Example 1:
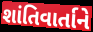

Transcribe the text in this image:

શાંતિવાર્તાને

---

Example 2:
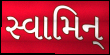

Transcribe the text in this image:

સ્વામિન્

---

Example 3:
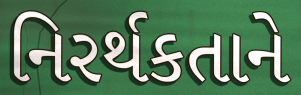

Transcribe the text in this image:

નિરર્થકતાને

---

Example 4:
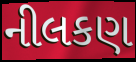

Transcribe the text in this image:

નીલકણ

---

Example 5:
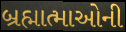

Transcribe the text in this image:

બ્રહ્માત્માઓની